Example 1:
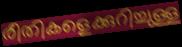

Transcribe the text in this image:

രീതികളെക്കുറിച്ചുള്ള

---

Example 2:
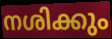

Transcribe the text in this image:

നശിക്കും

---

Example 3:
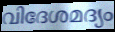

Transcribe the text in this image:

വിദേശമദ്യം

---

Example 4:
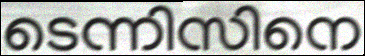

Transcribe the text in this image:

ടെന്നിസിനെ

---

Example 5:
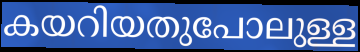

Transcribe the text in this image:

കയറിയതുപോലുള്ള